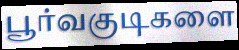
பூர்வகுடிகளை